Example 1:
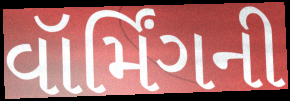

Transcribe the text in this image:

વૉર્મિંગની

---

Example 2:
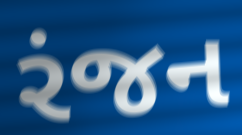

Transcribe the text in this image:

રંજન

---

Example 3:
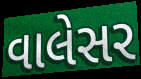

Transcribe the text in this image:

વાલેસર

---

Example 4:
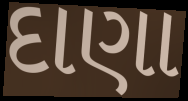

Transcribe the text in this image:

દાણા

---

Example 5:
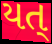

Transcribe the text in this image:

યત્